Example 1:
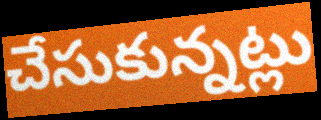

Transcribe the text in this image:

చేసుకున్నట్లు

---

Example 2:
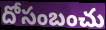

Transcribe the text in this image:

దోసంబంచు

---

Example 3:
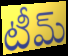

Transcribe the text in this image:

టీమ్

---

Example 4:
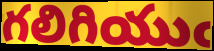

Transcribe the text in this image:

గలిగియుఁ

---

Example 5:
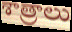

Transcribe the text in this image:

శాత్రాలు